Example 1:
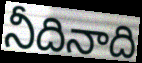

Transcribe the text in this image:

నీదినాది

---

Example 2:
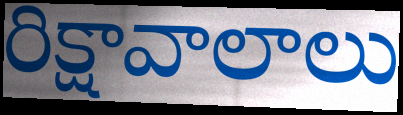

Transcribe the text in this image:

రిక్షావాలాలు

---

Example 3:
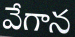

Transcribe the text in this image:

వేగాన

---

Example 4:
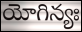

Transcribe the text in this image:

యోగిన్యః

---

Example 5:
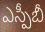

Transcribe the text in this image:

ఎస్పీబీ